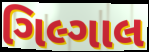
ગિલ્ગાલ